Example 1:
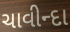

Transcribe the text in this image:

ચાવીન્દા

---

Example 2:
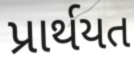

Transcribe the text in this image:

પ્રાર્થયત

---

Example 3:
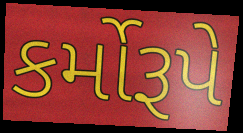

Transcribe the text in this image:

કર્મોરૂપે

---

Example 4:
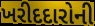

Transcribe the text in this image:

ખરીદદારોની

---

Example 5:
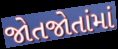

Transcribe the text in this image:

જોતજોતાંમાં